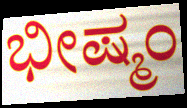
ಭೀಷ್ಮಂ